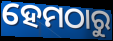
ହେମଠାରୁ